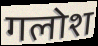
गलोश